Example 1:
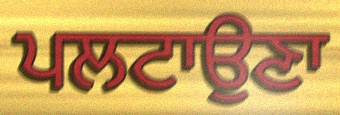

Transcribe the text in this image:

ਪਲਟਾਉਣਾ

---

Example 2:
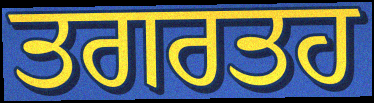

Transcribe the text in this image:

ਤਗਰਤਹ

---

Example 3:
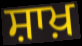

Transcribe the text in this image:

ਸ਼ਾਖ਼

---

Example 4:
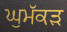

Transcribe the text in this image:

ਘੁਮੱਕਡ਼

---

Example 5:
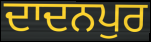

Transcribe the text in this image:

ਦਾਦਨਪੁਰ